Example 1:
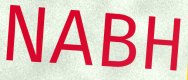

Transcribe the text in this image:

NABH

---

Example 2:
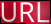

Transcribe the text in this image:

URL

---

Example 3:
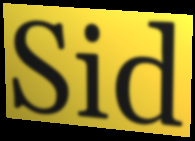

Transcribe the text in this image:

Sid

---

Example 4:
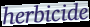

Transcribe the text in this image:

herbicide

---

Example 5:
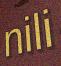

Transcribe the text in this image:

nili